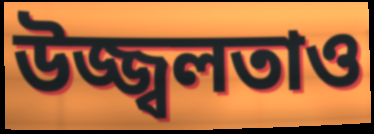
উজ্জ্বলতাও